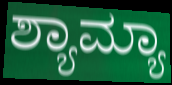
ಶ್ಯಾಮ್ಯಾ